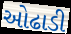
ઓઢાડી